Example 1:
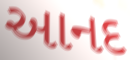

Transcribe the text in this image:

આનદ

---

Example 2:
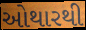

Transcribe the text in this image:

ઓથારથી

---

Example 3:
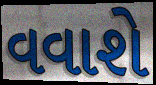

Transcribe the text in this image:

વવાશે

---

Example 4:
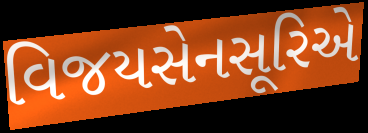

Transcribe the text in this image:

વિજયસેનસૂરિએ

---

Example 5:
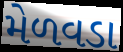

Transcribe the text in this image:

મેળવડા